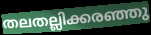
തലതല്ലിക്കരഞ്ഞു